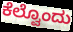
ಕೆಲ್ವೊಂದು